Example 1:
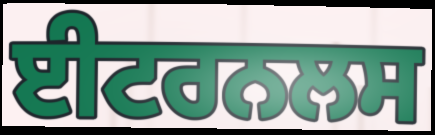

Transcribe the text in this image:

ਈਟਰਨਲਸ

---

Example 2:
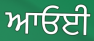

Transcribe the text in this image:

ਆਓਈ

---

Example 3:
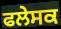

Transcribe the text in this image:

ਫਲੇਸਕ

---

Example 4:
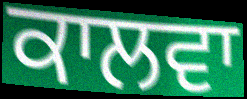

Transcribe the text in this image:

ਕਾਲਵਾ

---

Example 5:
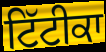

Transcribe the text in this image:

ਟਿੱਟੀਕਾ